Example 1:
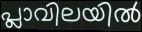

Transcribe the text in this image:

പ്ലാവിലയിൽ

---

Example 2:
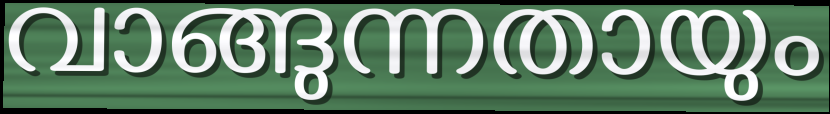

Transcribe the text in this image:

വാങ്ങുന്നതായും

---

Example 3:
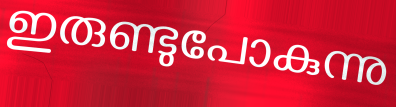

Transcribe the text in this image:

ഇരുണ്ടുപോകുന്നു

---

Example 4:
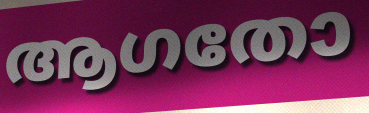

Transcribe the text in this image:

ആഗതോ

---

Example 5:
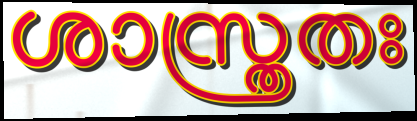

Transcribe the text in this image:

ശാസ്ത്രതഃ